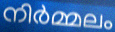
നിർമ്മലം